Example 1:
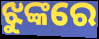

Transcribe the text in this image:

ଝୁଙ୍କରେ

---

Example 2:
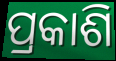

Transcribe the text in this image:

ପ୍ରକାଶି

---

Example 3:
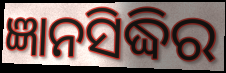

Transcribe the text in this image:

ଜ୍ଞାନସିଦ୍ଧିର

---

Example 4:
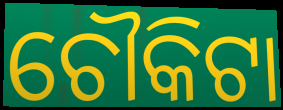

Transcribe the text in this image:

ଚୌକିଟା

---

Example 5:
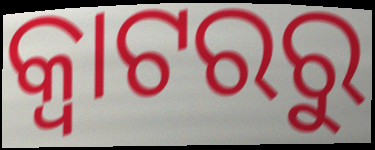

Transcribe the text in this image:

କ୍ୱାଟରରୁ